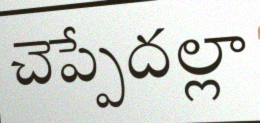
చెప్పేదల్లా